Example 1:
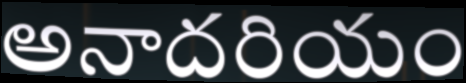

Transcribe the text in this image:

అనాదరియం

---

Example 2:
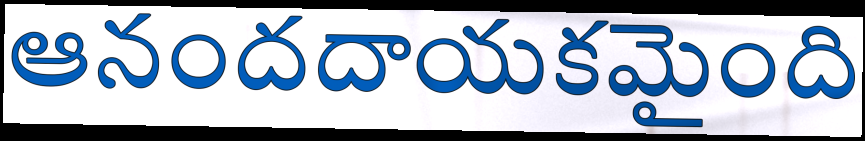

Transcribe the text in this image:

ఆనందదాయకమైంది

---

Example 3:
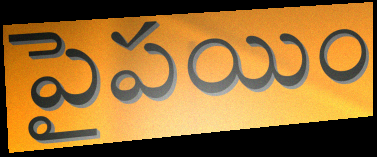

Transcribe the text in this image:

పైపయిం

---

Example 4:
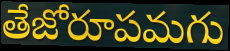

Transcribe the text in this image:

తేజోరూపమగు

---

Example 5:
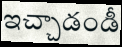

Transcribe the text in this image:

ఇచ్చాడండీ